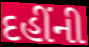
દહીંની